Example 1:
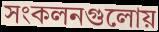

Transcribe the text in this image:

সংকলনগুলোয়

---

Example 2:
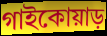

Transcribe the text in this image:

গাইকোয়াড়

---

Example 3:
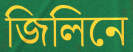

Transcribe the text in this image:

জিলিনে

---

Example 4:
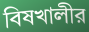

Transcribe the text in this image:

বিষখালীর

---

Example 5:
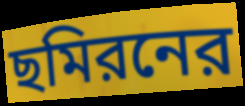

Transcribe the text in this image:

ছমিরনের